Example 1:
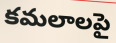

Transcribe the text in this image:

కమలాలపై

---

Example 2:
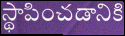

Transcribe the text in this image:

స్థాపించడానికి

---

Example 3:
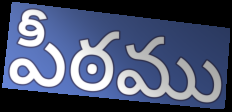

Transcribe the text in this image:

పీఠము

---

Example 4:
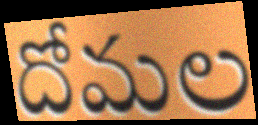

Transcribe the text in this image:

దోమల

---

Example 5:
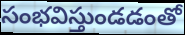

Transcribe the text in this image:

సంభవిస్తుండడంతో